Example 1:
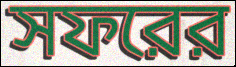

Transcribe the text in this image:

সফরের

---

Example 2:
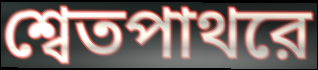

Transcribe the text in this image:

শ্বেতপাথরে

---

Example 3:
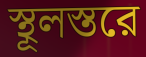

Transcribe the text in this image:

স্থূলস্তরে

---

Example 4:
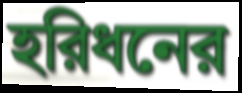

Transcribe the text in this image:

হরিধনের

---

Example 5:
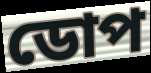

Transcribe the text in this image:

ডোপ